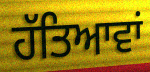
ਹੱਤਿਆਵਾਂ